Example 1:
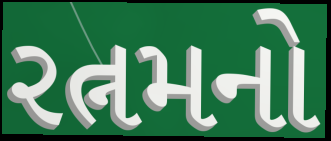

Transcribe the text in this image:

રત્નમનો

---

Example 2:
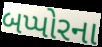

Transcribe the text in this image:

બપ્પોરના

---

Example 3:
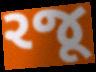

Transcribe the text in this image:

રજૂ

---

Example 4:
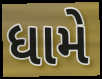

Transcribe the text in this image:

ધામે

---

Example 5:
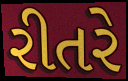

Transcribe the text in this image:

રીતરે